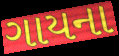
ગાયના